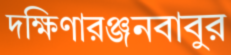
দক্ষিণারঞ্জনবাবুর